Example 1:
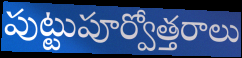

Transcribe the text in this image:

పుట్టుపూర్వోత్తరాలు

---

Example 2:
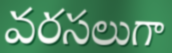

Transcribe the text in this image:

వరసలుగా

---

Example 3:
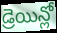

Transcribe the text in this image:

డ్రెయిన్లో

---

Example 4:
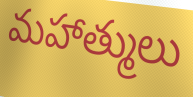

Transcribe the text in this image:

మహాత్ములు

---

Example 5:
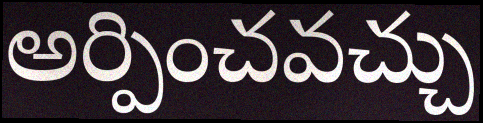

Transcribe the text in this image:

అర్పించవచ్చు